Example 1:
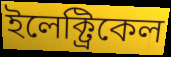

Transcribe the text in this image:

ইলেক্ট্রিকেল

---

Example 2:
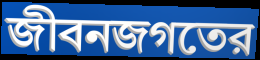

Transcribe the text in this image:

জীবনজগতের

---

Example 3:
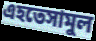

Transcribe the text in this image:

এহতেসামুল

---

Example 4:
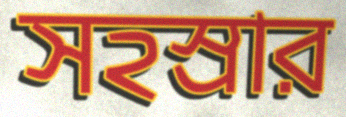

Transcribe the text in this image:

সহস্রার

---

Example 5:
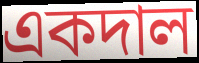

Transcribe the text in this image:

একদাল